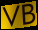
VB